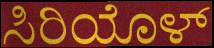
ಸಿರಿಯೊಳ್